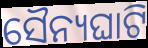
ସୈନ୍ୟଘାଟି